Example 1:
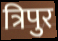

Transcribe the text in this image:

त्रिपुर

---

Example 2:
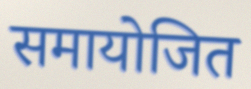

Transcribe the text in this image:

समायोजित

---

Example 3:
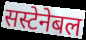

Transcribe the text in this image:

सस्टेनेबल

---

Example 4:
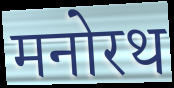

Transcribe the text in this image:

मनोरथ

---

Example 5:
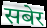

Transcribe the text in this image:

सबेर